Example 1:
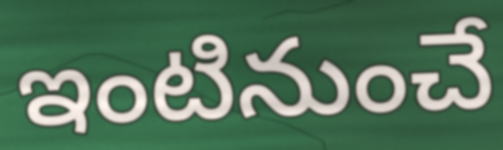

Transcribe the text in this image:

ఇంటినుంచే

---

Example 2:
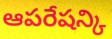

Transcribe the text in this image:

ఆపరేషన్కి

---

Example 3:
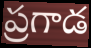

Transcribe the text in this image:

ప్రగాడ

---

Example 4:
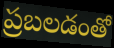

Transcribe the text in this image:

ప్రబలడంతో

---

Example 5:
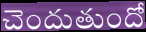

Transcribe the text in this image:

చెందుతుందో